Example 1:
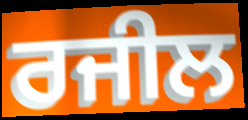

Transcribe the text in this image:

ਰਜੀਲ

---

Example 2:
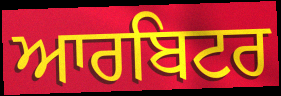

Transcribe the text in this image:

ਆਰਬਿਟਰ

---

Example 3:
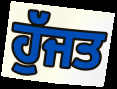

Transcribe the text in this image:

ਹੁੱਜਤ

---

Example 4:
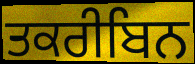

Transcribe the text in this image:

ਤਕਰੀਬਿਨ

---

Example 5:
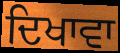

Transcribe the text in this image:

ਦਿਖਾਵਾ